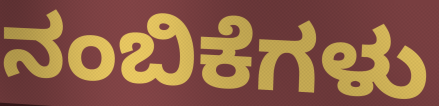
ನಂಬಿಕೆಗಳು